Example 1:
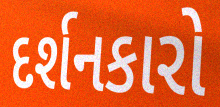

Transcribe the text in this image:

દર્શનકારો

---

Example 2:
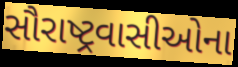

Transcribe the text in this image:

સૌરાષ્ટ્રવાસીઓના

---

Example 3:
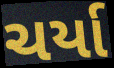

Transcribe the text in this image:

ચર્યા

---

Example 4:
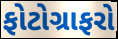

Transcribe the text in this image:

ફોટોગ્રાફરો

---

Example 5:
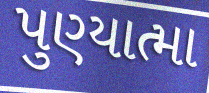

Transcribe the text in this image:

પુણ્યાત્મા